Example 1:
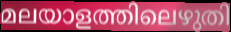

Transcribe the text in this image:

മലയാളത്തിലെഴുതി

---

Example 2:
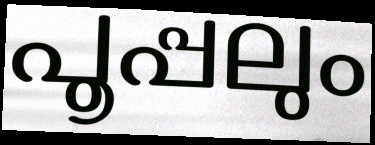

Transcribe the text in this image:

പൂപ്പലും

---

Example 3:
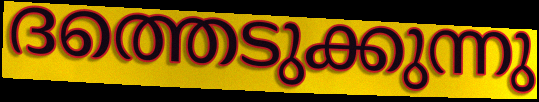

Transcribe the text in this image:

ദത്തെടുക്കുന്നു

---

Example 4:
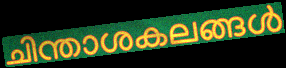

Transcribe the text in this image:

ചിന്താശകലങ്ങൾ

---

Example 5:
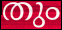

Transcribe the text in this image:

തും